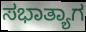
ಸಭಾತ್ಯಾಗ